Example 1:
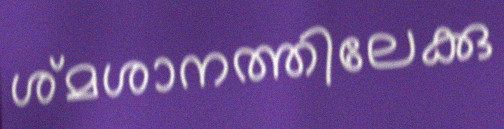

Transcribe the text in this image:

ശ്മശാനത്തിലേക്കു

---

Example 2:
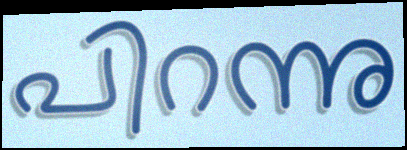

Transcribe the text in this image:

പിറന്നു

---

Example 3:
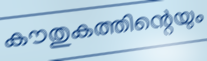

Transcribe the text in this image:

കൗതുകത്തിന്റെയും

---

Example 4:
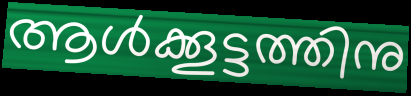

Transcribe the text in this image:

ആൾക്കൂട്ടത്തിനു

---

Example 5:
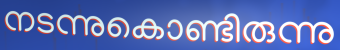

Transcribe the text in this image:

നടന്നുകൊണ്ടിരുന്നു